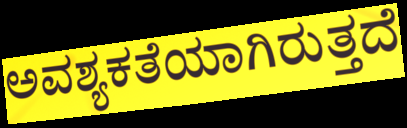
ಅವಶ್ಯಕತೆಯಾಗಿರುತ್ತದೆ